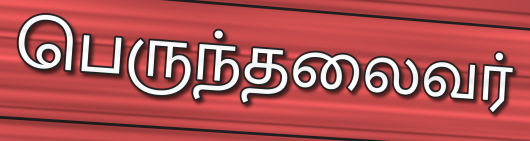
பெருந்தலைவர்